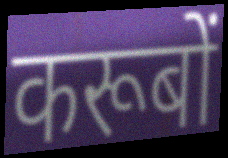
करूबों